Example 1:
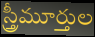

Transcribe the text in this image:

స్త్రీమూర్తుల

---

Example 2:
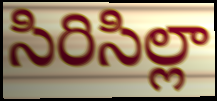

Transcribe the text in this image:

సిరిసిల్లా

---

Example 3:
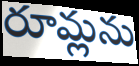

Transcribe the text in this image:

రూమ్లను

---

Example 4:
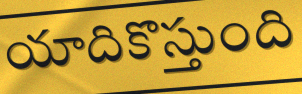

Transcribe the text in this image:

యాదికొస్తుంది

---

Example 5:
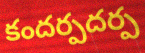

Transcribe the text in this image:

కందర్పదర్ప